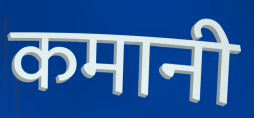
कमानी